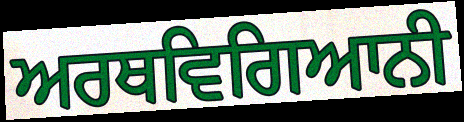
ਅਰਥਵਿਗਿਆਨੀ